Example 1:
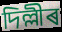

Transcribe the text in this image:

দিল্লীৰ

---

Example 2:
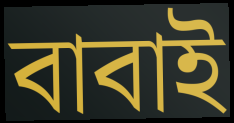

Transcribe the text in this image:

বাবাই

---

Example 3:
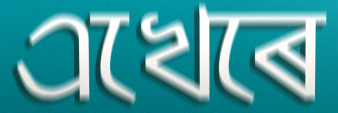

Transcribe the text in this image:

এখেৰে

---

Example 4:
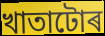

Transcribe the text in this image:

খাতাটোৰ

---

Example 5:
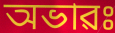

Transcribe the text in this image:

অভাৱঃ